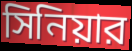
সিনিয়ার